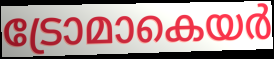
ട്രോമാകെയർ